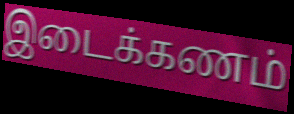
இடைக்கணம்